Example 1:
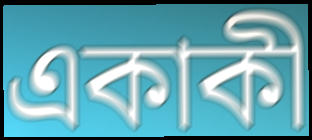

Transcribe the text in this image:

একাকী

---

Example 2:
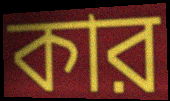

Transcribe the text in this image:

কার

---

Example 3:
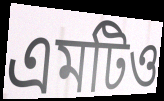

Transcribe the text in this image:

এমটিও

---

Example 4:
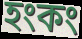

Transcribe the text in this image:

হংকং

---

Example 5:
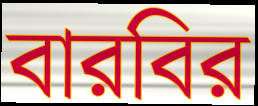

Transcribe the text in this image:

বারবির